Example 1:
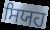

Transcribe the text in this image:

ਸਿਯਹ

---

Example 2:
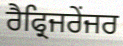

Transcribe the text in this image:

ਰੈਫ੍ਰਿਜਰੇਂਜਰ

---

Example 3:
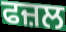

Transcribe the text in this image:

ਫਜ਼ਲ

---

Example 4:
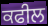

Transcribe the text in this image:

ਕਫੀਲ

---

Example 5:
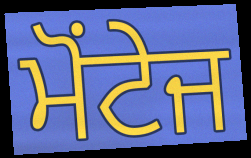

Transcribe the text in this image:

ਮੋਂਟੇਜ